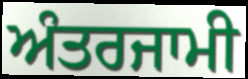
ਅੰਤਰਜਾਮੀ